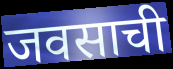
जवसाची